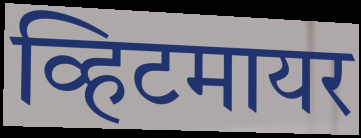
व्हिटमायर